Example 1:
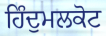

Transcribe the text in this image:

ਹਿੰਦੁਮਲਕੋਟ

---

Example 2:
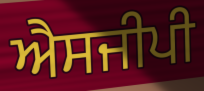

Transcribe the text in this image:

ਐਸਜੀਪੀ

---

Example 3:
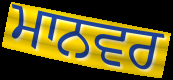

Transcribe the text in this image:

ਮਾਨਵਰ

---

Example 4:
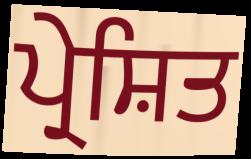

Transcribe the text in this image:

ਪ੍ਰੇਸ਼ਿਤ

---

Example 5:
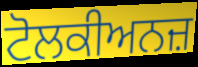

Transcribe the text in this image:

ਟੋਲਕੀਅਨਜ਼